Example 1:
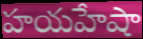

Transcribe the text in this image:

హయహేషా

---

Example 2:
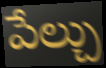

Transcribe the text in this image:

పేల్చు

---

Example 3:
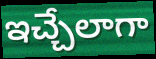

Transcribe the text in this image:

ఇచ్చేలాగా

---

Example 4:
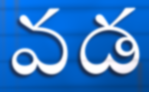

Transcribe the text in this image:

వడ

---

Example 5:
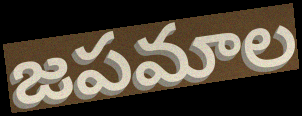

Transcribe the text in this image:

జపమాల